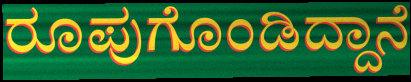
ರೂಪುಗೊಂಡಿದ್ದಾನೆ